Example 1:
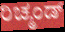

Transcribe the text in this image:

ರಿಚ್ಮಂಡ್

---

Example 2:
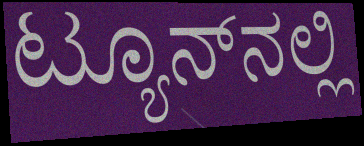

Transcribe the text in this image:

ಟ್ಯೂನ್‌ನಲ್ಲಿ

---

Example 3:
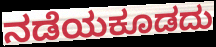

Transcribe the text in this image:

ನಡೆಯಕೂಡದು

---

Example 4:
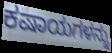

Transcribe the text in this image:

ಕಷಾಯಗಳನ್ನು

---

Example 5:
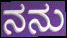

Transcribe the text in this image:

ನನು